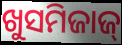
ଖୁସମିଜାଜ୍